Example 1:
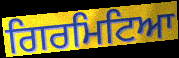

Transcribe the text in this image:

ਗਿਰਮਿਟਿਆ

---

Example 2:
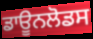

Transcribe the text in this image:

ਡਾਊਨਲੋਡਸ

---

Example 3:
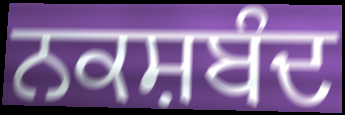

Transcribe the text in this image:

ਨਕਸ਼ਬੰਦ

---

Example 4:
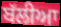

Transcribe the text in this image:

ਬੱਲੀਆ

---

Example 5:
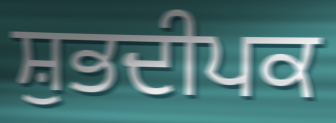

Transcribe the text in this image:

ਸ਼ੁਭਦੀਪਕ